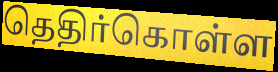
தெதிர்கொள்ள